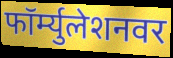
फॉर्म्युलेशनवर